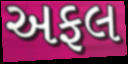
અફલ